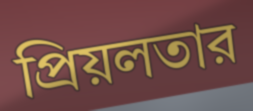
প্রিয়লতার